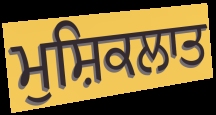
ਮੁਸ਼ਿਕਲਾਤ